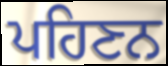
ਪਹਿਣਨ